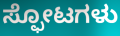
ಸ್ಫೋಟಗಳು